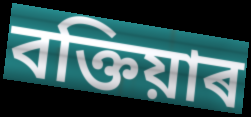
বক্তিয়াৰ